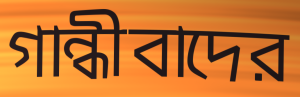
গান্ধীবাদের